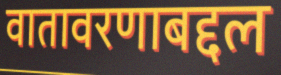
वातावरणाबद्दल